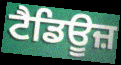
ਟੈਡਿਊਜ਼